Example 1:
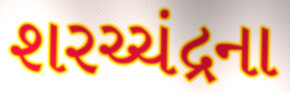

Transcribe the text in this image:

શરચ્ચંદ્રના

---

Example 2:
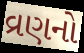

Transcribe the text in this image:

વ્રણનો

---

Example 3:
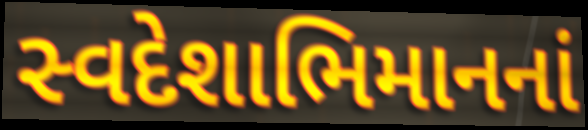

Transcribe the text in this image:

સ્વદેશાભિમાનનાં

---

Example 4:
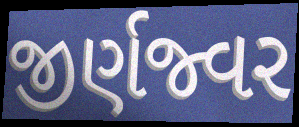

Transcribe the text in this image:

જીર્ણજ્વર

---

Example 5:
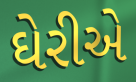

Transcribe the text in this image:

ઘેરીએ